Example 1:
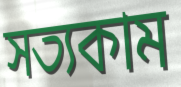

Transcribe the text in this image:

সত্যকাম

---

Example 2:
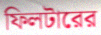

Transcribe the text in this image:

ফিলটারের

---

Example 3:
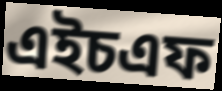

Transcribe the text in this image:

এইচএফ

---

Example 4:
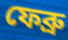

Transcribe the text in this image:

ফেব্রু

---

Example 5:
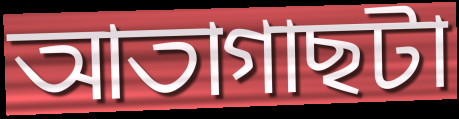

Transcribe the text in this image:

আতাগাছটা